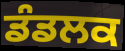
ਡੰਡਲਕ